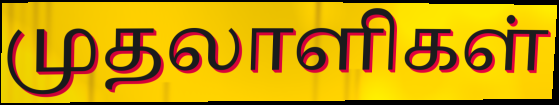
முதலாளிகள்